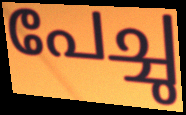
പേച്ചു